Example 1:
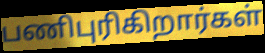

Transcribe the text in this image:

பணிபுரிகிறார்கள்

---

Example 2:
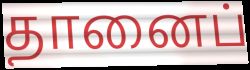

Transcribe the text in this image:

தானைப்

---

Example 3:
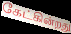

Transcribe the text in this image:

கேட்கின்றது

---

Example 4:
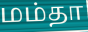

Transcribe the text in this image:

மம்தா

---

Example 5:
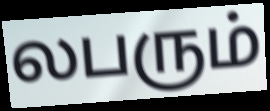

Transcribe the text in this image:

லபரும்